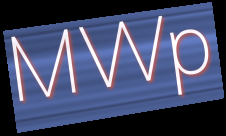
MWp